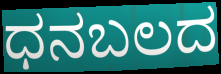
ಧನಬಲದ